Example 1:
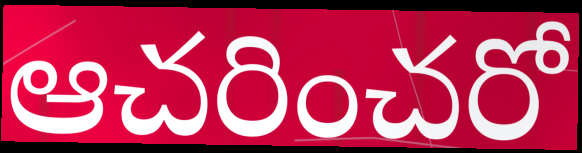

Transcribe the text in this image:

ఆచరించరో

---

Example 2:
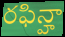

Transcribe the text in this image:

రఫిన్హా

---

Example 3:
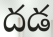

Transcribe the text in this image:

దడ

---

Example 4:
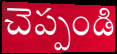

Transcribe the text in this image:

చెప్పండి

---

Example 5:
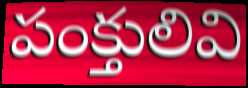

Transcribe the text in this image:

పంక్తులివి